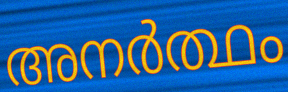
അനർത്ഥം